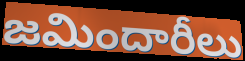
జమిందారీలు